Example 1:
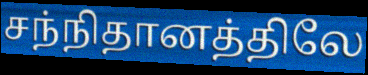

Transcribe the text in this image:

சந்நிதானத்திலே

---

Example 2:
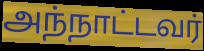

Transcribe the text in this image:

அந்நாட்டவர்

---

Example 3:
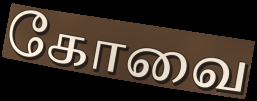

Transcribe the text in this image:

கோவை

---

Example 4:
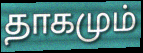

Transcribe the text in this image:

தாகமும்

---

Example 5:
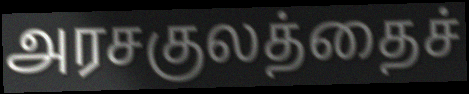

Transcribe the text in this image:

அரசகுலத்தைச்